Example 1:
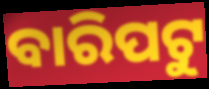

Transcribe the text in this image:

ବାରିପଟୁ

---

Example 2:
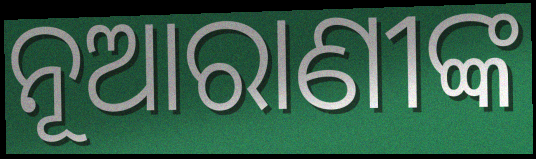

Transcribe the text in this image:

ନୂଆରାଣୀଙ୍କ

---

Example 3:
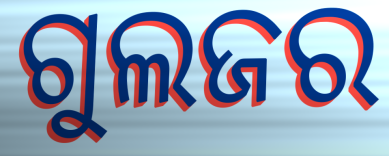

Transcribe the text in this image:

ଗୁଲଜର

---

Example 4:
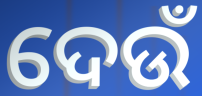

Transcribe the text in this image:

ଦେଉଁ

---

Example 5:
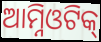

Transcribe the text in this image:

ଆମ୍ନିଓଟିକ୍